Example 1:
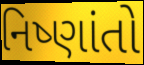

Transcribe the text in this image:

નિષ્ણાંતો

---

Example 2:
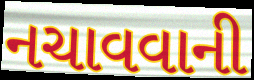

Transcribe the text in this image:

નચાવવાની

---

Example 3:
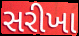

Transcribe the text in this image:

સરીખા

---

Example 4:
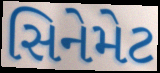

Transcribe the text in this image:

સિનેમેટ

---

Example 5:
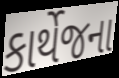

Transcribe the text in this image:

કાર્થેજના